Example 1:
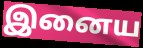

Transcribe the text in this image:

இனைய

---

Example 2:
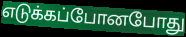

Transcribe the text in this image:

எடுக்கப்போனபோது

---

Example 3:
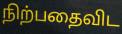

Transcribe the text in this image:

நிற்பதைவிட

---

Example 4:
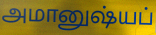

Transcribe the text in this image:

அமானுஷ்யப்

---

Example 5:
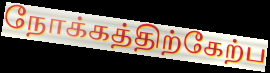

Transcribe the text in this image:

நோக்கத்திற்கேற்ப